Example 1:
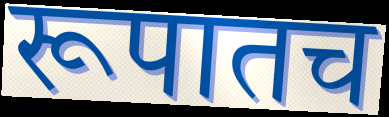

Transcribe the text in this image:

रूपातच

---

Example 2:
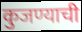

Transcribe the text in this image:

कुजण्याची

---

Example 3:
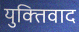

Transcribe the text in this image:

युक्‍तिवाद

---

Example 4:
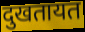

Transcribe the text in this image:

दुखतायत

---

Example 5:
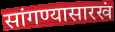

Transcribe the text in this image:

सांगण्यासारखं